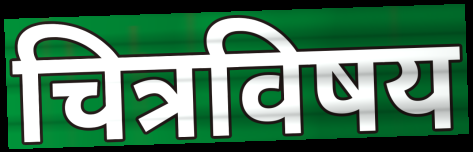
चित्रविषय